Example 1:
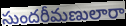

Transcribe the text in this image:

సుందరీమణులారా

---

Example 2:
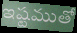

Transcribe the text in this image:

ఇష్టముతో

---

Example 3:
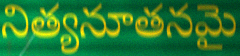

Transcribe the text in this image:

నిత్యనూతనమై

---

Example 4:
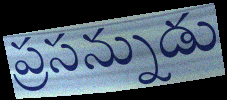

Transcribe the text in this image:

ప్రసన్నుడు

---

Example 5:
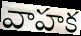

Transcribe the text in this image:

వాహక